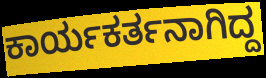
ಕಾರ್ಯಕರ್ತನಾಗಿದ್ದ